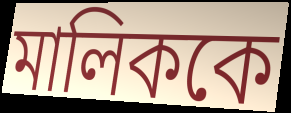
মালিককে